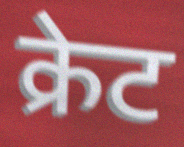
क्रेट